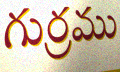
గుర్రము